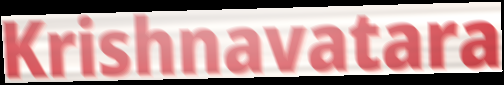
Krishnavatara